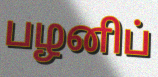
பழனிப்